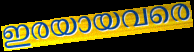
ഇരയായവരെ